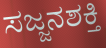
ಸಜ್ಜನಶಕ್ತಿ